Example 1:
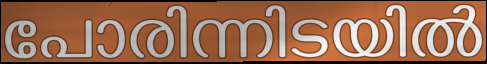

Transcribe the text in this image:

പോരിന്നിടയിൽ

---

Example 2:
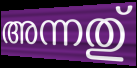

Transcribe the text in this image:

അന്നതു്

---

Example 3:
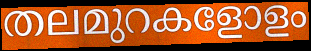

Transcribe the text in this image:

തലമുറകളോളം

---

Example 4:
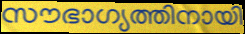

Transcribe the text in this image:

സൗഭാഗ്യത്തിനായി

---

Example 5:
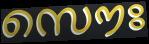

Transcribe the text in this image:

സൌഃ